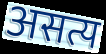
असत्य